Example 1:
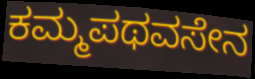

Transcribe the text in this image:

ಕಮ್ಮಪಥವಸೇನ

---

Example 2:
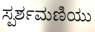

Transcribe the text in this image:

ಸ್ಪರ್ಶಮಣಿಯು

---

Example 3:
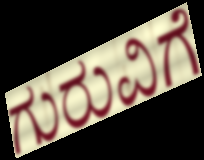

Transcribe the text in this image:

ಗುರುವಿಗೆ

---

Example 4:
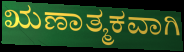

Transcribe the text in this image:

ಋಣಾತ್ಮಕವಾಗಿ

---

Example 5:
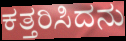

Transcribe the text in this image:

ಕತ್ತರಿಸಿದನು